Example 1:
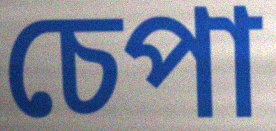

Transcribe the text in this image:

চেপা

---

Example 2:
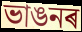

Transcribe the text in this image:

ভাঙনৰ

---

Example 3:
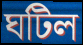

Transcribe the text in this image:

ঘটিল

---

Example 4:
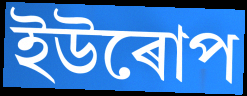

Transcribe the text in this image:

ইউৰোপ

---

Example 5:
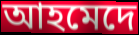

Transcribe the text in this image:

আহমেদে